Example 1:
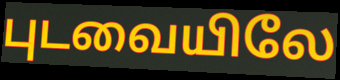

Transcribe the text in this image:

புடவையிலே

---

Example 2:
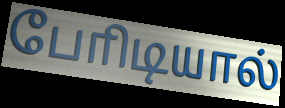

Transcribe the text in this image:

பேரிடியால்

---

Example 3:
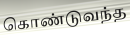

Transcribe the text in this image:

கொண்டுவந்த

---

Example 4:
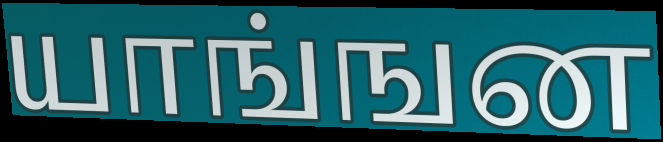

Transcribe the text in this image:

யாங்ஙன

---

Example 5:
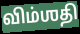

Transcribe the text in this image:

விம்ஶதி